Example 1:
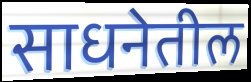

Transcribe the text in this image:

साधनेतील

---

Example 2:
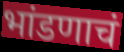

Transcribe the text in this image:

भांडणाचं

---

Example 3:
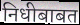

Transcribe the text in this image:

निधीबाबत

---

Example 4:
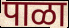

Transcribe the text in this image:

पाळा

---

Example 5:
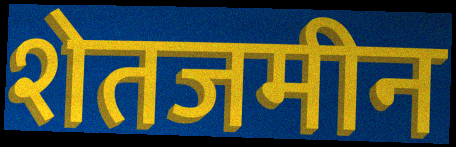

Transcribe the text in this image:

शेतजमीन